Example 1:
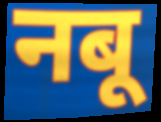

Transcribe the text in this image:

नबू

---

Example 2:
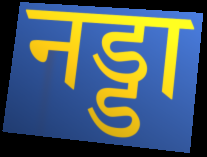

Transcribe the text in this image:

नड्डा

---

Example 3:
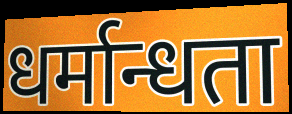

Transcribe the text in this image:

धर्मान्धता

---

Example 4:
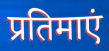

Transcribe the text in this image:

प्रतिमाएं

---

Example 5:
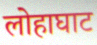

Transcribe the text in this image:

लोहाघाट